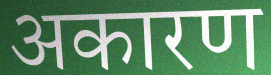
अकारण